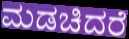
ಮಡಚಿದರೆ